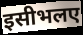
इसीभलए